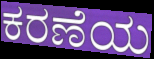
ಕರಣೆಯ